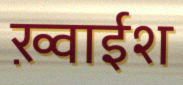
ख़्वाईश